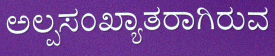
ಅಲ್ಪಸಂಖ್ಯಾತರಾಗಿರುವ